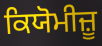
ਕਿਯੋਮੀਜ਼ੂ